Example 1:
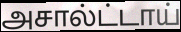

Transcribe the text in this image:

அசால்ட்டாய்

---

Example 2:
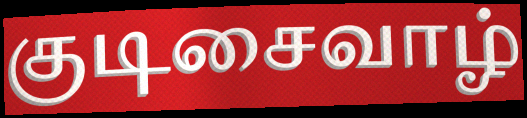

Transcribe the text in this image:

குடிசைவாழ்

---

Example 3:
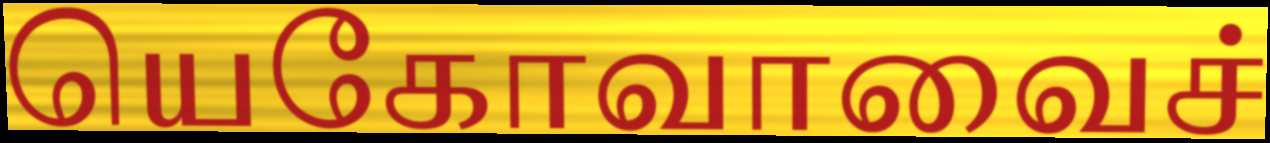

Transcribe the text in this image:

யெகோவாவைச்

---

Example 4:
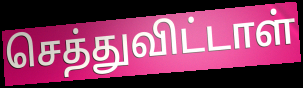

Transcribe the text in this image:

செத்துவிட்டாள்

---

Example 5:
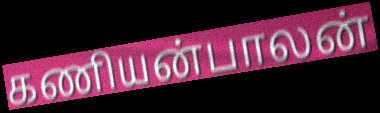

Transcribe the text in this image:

கணியன்பாலன்